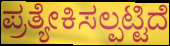
ಪ್ರತ್ಯೇಕಿಸಲ್ಪಟ್ಟಿದೆ